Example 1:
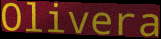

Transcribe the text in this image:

Olivera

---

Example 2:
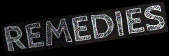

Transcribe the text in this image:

REMEDIES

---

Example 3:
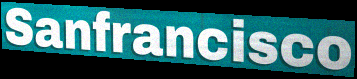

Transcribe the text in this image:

Sanfrancisco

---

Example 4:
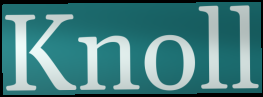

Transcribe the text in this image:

Knoll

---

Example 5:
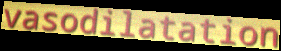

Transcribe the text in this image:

vasodilatation